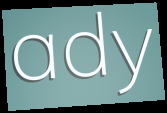
ady